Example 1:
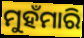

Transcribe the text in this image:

ମୁହଁମାରି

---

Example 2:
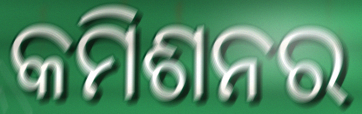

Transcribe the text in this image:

କମିଶନର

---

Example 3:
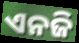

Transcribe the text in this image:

ଏନଜି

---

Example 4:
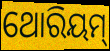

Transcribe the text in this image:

ଥୋରିୟମ୍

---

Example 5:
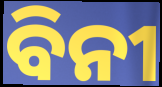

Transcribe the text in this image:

ବିନୀ